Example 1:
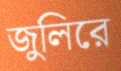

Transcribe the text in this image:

জুলিরে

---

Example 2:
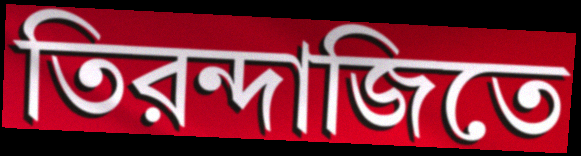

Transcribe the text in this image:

তিরন্দাজিতে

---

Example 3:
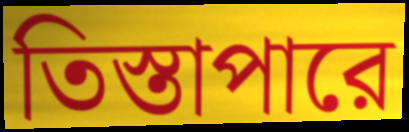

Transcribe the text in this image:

তিস্তাপারে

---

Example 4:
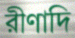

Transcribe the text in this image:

রীণাদি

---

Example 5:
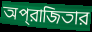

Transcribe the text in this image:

অপ্‌রাজিতার